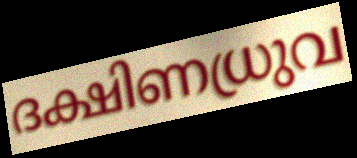
ദക്ഷിണധ്രുവ